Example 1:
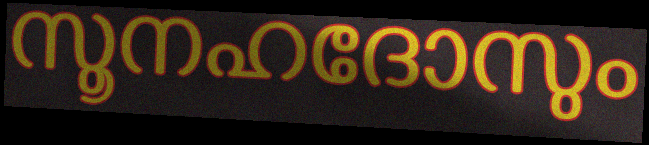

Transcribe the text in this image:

സൂനഹദോസും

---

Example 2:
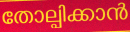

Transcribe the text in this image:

തോല്പിക്കാൻ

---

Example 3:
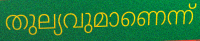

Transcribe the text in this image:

തുല്യവുമാണെന്ന്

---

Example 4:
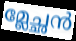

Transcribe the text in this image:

മ്ലേച്ഛൻ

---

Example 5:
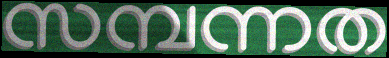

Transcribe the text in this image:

സമ്പന്നത